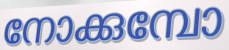
നോക്കുമ്പോ